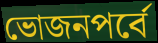
ভোজনপর্বে